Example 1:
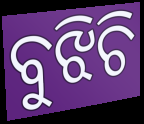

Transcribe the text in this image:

ବୁଝିଚି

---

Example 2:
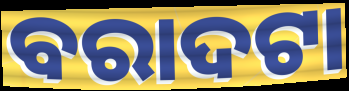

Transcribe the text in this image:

ବରାଦଟା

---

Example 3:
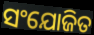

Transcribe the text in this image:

ସଂଯୋଜିତ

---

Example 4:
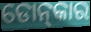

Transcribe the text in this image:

ଡୋନ୍‍କାର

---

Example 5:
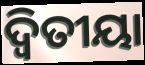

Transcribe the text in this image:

ଦ୍ବିତୀୟା